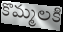
కొమ్మలకి